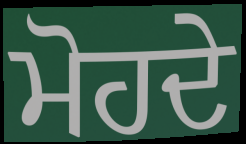
ਮੋਹਦੇ